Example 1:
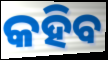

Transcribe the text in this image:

କହିବ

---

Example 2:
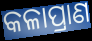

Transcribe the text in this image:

କଳାପ୍ରାଣ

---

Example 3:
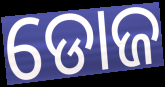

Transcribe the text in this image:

ଡୋଜ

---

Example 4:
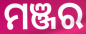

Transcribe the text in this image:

ମଞ୍ଜର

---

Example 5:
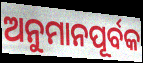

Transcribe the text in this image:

ଅନୁମାନପୂର୍ବକ